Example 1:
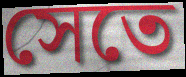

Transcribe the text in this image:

সেতে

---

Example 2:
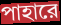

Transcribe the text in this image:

পাহারে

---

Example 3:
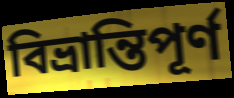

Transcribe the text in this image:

বিভ্রান্তিপূর্ণ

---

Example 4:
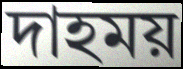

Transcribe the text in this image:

দাহময়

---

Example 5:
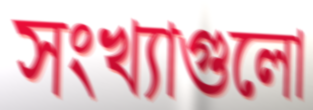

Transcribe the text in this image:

সংখ্যাগুলো